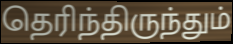
தெரிந்திருந்தும்